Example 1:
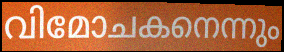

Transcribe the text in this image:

വിമോചകനെന്നും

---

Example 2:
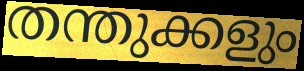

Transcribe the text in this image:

തന്തുക്കളും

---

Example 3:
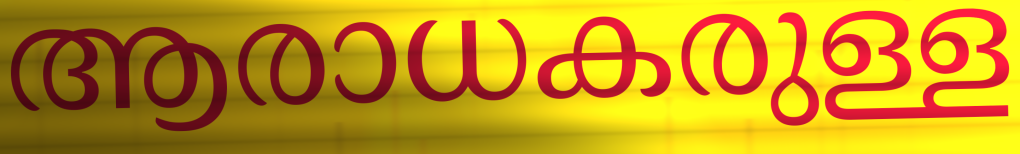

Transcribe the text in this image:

ആരാധകരുള്ള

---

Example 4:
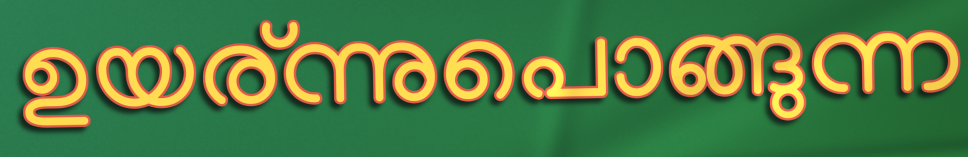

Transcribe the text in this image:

ഉയര്ന്നുപൊങ്ങുന്ന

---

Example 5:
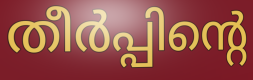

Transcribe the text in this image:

തീർപ്പിന്റെ